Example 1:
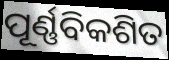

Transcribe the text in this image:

ପୂର୍ଣ୍ଣବିକଶିତ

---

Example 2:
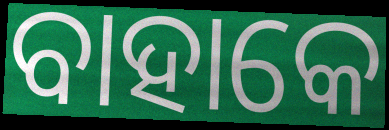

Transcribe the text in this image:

ବାହାକେ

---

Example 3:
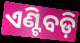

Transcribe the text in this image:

ଏଣ୍ଟିବଡ଼ି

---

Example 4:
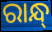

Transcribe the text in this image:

ରାନ୍ଧ୍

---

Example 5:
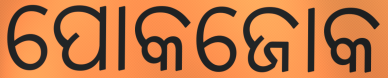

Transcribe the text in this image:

ପୋକଜୋକ